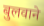
बुलवाने